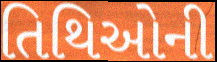
તિથિઓની